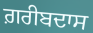
ਗ਼ਰੀਬਦਾਸ